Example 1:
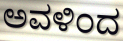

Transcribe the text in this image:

ಅವಳಿಂದ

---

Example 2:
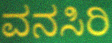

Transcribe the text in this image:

ವನಸಿರಿ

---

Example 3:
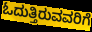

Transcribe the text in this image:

ಓದುತ್ತಿರುವವರಿಗೆ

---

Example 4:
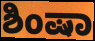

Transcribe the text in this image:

ಶಿಂಷಾ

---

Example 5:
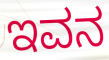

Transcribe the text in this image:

ಇವನ